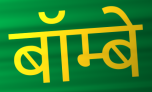
बॉम्‍बे